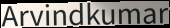
Arvindkumar